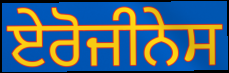
ਏਰੋਜੀਨੇਸ